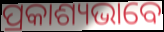
ପ୍ରକାଶ୍ୟଭାବେ